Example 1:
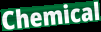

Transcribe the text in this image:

Chemical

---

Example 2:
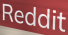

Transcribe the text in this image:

Reddit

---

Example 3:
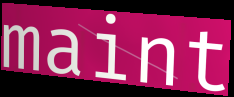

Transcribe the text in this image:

maint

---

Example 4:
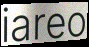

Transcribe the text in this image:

iareo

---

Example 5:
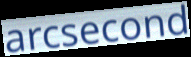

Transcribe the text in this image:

arcsecond